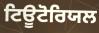
ਟਿਊਟੋਰਿਯਲ